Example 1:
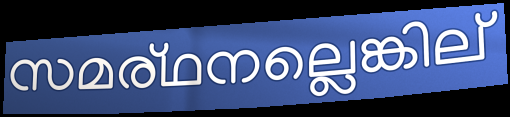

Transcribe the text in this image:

സമര്ഥനല്ലെങ്കില്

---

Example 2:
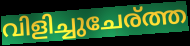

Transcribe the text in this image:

വിളിച്ചുചേര്ത്ത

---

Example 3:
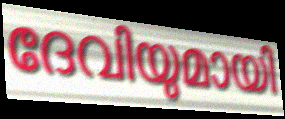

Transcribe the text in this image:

ദേവിയുമായി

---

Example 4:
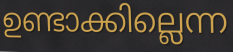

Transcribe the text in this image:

ഉണ്ടാക്കില്ലെന്ന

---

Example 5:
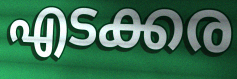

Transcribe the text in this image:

എടക്കര